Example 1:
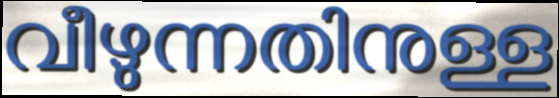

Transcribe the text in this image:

വീഴുന്നതിനുള്ള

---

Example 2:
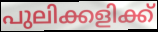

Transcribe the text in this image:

പുലിക്കളിക്ക്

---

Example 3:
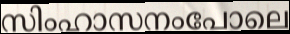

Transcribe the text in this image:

സിംഹാസനംപോലെ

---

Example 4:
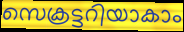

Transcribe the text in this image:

സെക്രട്ടറിയാകാം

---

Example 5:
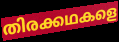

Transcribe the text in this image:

തിരക്കഥകളെ